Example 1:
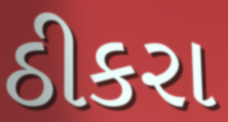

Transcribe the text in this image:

ઠીકરા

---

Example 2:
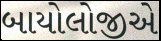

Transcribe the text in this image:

બાયોલોજીએ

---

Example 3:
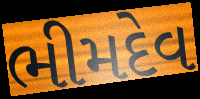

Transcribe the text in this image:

ભીમદેવ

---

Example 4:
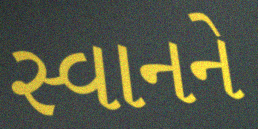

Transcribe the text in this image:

સ્વાનને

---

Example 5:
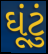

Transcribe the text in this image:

ઘૂંટું